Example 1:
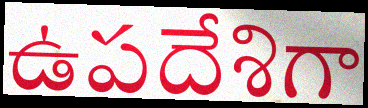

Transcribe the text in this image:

ఉపదేశిగా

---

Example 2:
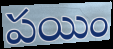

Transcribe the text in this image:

పయిం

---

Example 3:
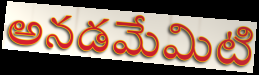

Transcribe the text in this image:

అనడమేమిటి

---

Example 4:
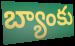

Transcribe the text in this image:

బ్యాంకు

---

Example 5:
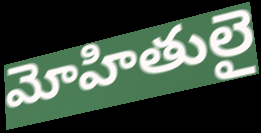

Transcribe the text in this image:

మోహితులై